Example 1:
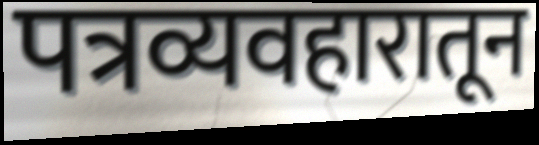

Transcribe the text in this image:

पत्रव्यवहारातून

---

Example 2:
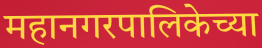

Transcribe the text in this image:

महानगरपालिकेच्या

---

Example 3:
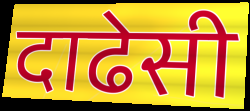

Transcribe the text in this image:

दाढेसी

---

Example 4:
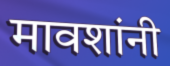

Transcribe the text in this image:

मावशांनी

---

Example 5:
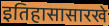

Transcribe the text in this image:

इतिहासासारखे